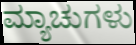
ಮ್ಯಾಚುಗಳು